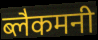
ब्लैकमनी